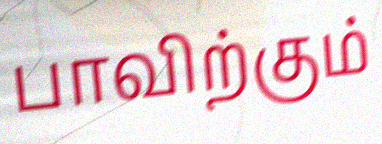
பாவிற்கும்